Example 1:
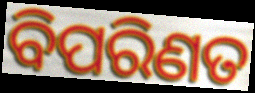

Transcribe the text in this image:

ବିପରିଣତ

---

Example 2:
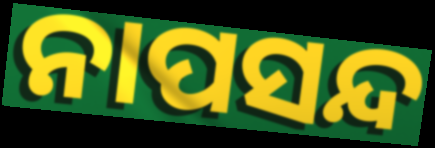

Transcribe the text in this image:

ନାପସନ୍ଦ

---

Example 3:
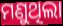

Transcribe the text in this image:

ମଣୁଥିଲା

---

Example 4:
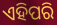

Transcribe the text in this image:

ଏହିପରି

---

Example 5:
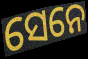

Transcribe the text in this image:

ସେନେ